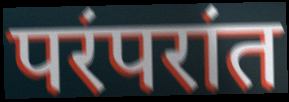
परंपरांत